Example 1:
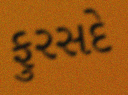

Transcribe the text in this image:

ફુરસદે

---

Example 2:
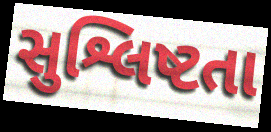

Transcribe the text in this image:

સુશ્લિષ્ટતા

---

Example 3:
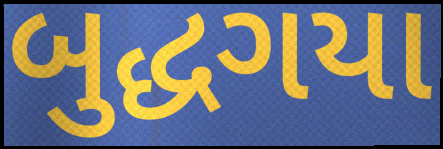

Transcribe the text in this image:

બુદ્ધગયા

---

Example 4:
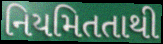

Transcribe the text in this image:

નિયમિતતાથી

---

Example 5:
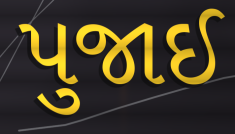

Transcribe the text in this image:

પુજાઈ